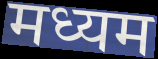
मध्यम